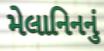
મેલાનિનનું